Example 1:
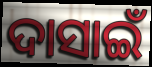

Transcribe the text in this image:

ଦାସାଇଁ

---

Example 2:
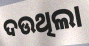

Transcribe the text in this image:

ଦଉଥିଲା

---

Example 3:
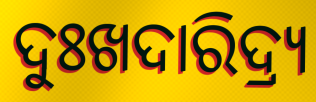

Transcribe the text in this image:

ଦୁଃଖଦାରିଦ୍ର୍ୟ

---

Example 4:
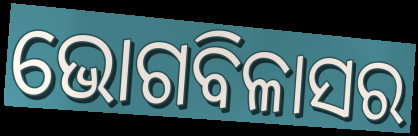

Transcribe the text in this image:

ଭୋଗବିଳାସର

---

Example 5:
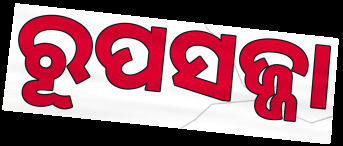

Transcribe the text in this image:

ରୂପସଜ୍ଜା